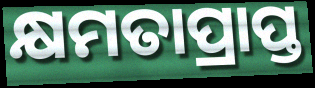
କ୍ଷମତାପ୍ରାପ୍ତ